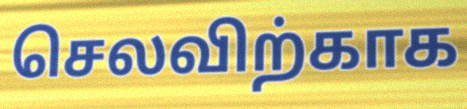
செலவிற்காக